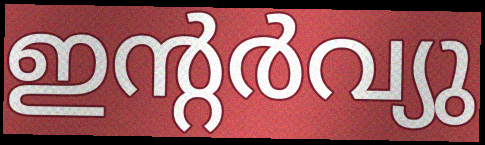
ഇന്റർവ്യു